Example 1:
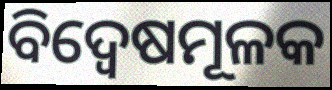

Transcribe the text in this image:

ବିଦ୍ୱେଷମୂଳକ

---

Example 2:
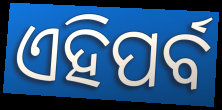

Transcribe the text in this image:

ଏହିପର୍ବ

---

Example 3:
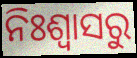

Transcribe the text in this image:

ନିଃଶ୍ବାସରୁ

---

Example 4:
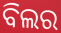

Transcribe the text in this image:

ବିଲର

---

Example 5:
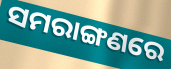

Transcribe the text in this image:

ସମରାଙ୍ଗଣରେ